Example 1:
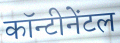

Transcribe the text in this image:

कॉन्टीनेंटल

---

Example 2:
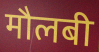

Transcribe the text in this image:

मौलबी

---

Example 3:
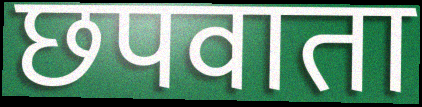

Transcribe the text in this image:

छपवाता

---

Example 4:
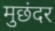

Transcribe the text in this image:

मुछंदर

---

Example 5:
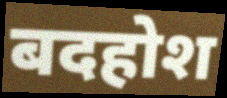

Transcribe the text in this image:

बदहोश